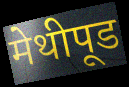
मेथीपूड